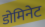
डोमिनेट